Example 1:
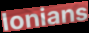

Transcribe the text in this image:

Ionians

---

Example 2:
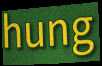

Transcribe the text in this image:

hung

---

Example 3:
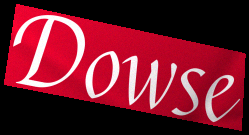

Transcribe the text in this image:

Dowse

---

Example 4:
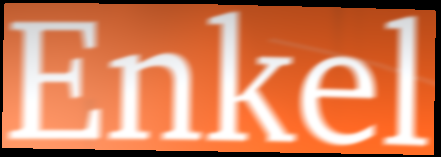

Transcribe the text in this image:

Enkel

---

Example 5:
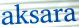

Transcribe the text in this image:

aksara